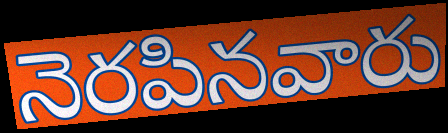
నెరపినవారు